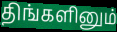
திங்களினும்